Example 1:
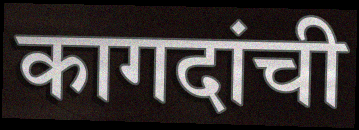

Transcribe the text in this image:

कागदांची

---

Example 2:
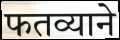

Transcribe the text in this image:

फतव्याने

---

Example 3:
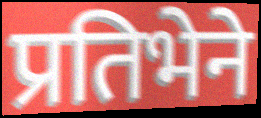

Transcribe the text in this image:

प्रतिभेने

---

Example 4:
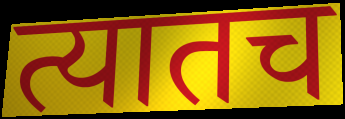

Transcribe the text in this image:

त्यातच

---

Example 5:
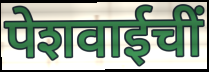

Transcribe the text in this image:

पेशवाईचीं